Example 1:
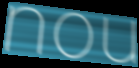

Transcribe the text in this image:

nou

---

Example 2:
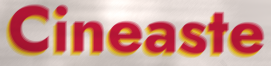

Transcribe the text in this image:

Cineaste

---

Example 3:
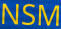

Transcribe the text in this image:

NSM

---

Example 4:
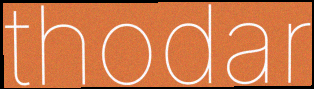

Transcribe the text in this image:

thodar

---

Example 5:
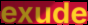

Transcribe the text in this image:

exude